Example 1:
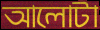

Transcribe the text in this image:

আলোটা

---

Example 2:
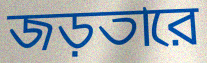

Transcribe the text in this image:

জড়তারে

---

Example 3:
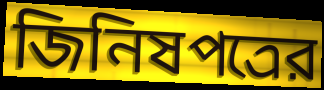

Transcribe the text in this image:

জিনিষপত্রের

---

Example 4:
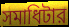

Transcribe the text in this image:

সমাধিটার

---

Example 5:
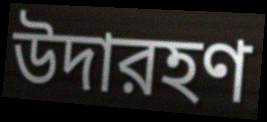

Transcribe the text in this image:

উদারহণ